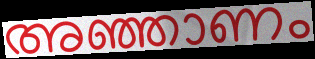
അഞ്ഞാണം